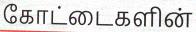
கோட்டைகளின்